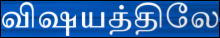
விஷயத்திலே